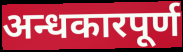
अन्धकारपूर्ण